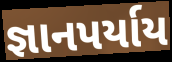
જ્ઞાનપર્યાય